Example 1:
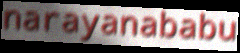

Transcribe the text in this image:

narayanababu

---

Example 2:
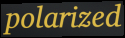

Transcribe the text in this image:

polarized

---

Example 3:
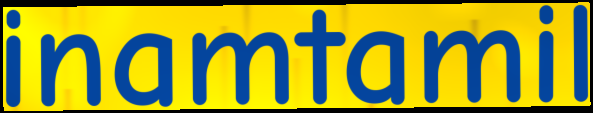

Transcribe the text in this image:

inamtamil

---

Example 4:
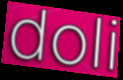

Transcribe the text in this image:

doli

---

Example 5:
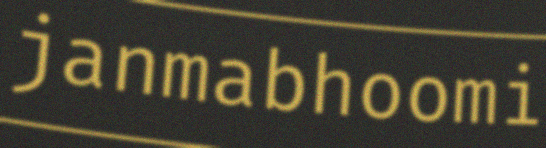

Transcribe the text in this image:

janmabhoomi